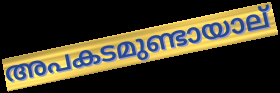
അപകടമുണ്ടായാല്